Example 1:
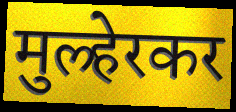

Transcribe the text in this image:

मुल्हेरकर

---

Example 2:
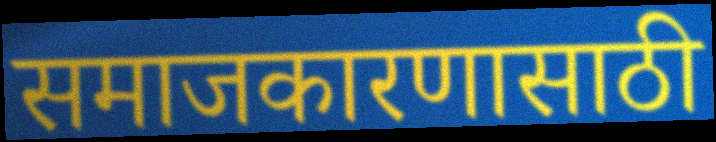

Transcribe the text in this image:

समाजकारणासाठी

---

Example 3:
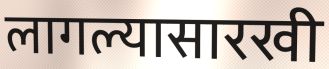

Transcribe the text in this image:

लागल्यासारखी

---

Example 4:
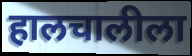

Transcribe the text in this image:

हालचालीला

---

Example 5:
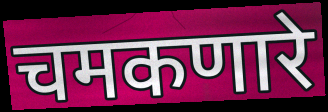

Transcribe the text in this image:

चमकणारे